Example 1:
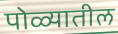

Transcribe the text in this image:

पोळ्यातील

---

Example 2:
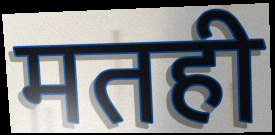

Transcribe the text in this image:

मतही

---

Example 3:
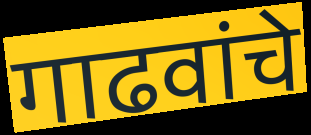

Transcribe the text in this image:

गाढवांचे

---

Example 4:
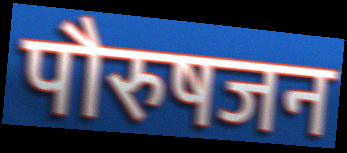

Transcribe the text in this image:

पौरुषजन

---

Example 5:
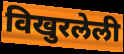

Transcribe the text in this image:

विखुरलेली